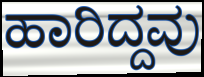
ಹಾರಿದ್ದವು